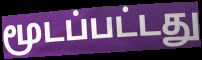
மூடப்பட்டது